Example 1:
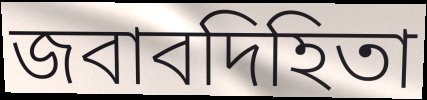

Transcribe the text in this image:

জবাবদিহিতা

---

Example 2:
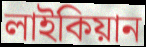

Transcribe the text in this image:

লাইকিয়ান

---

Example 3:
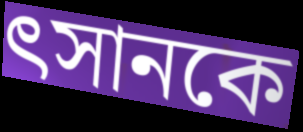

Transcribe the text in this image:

ৎসানকে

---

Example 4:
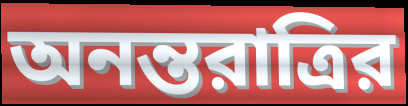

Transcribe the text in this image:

অনন্তরাত্রির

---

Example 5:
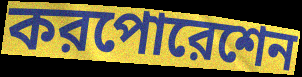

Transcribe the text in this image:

করপোরেশেন